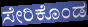
ಸೇರಿಕೊಂಡ